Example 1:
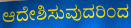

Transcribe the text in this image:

ಆದೇಶಿಸುವುದರಿಂದ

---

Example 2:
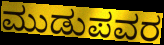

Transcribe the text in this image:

ಮುಡುಪವರ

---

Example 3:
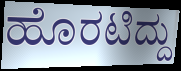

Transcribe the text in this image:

ಹೊರಟಿದ್ದು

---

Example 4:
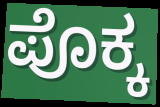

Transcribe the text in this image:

ಪೊಕ್ಕ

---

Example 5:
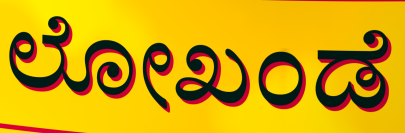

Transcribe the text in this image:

ಲೋಖಂಡೆ